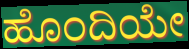
ಹೊಂದಿಯೇ